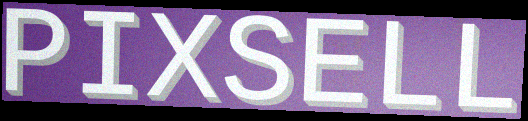
PIXSELL